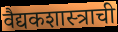
वैद्यकशास्त्राची